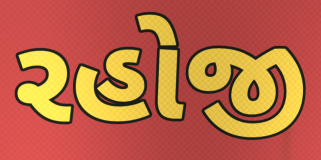
રહોજી